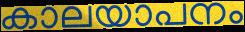
കാലയാപനം